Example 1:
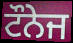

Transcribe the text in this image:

ਟੌਨੇਜ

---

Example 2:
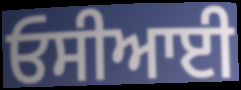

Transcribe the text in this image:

ਓਸੀਆਈ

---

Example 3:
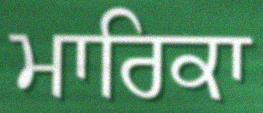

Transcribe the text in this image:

ਮਾਰਿਕਾ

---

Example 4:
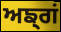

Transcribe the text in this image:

ਅਙ੍ਗਂ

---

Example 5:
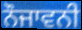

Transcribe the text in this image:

ਨੌਜਾਵਨੀ